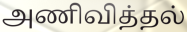
அணிவித்தல்